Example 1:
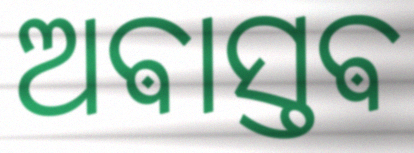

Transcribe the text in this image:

ଅଵାସ୍ତଵ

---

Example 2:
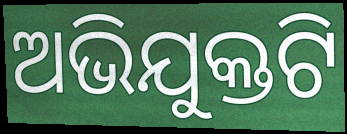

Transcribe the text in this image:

ଅଭିଯୁକ୍ତଟି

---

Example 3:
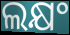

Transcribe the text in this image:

ଲକ୍ଷଂ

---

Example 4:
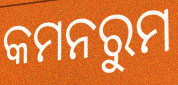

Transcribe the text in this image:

କମନରୁମ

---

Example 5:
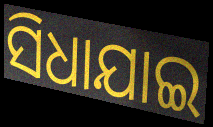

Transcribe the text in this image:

ସିଧାଯାଇ